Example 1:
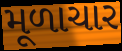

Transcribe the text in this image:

મૂળાચાર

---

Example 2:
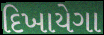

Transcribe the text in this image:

દિખાયેગા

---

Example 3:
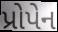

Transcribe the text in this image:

પ્રોપેન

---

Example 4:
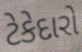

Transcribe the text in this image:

ટેકેદારો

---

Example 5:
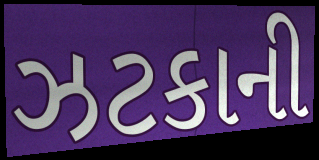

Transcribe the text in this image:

ઝટકાની